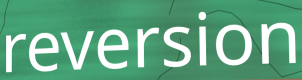
reversion